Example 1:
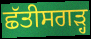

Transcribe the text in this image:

ਛੱਤੀਸਗਡ਼੍ਹ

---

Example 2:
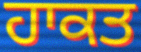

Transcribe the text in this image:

ਹਾਕਤ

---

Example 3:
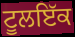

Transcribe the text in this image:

ਟੂਲਇੱਕ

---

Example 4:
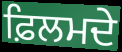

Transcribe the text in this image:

ਫ਼ਿਲਮਦੇ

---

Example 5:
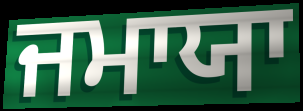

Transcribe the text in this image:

ਜਮਾਯਾ